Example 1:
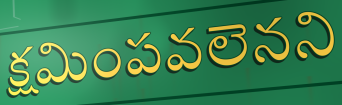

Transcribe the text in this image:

క్షమింపవలెనని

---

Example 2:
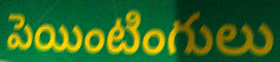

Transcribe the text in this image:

పెయింటింగులు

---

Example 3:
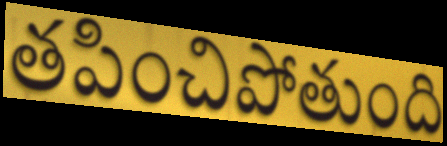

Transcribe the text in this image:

తపించిపోతుంది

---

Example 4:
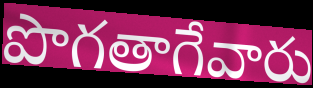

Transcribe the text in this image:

పొగతాగేవారు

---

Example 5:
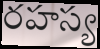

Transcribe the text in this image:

రహస్య